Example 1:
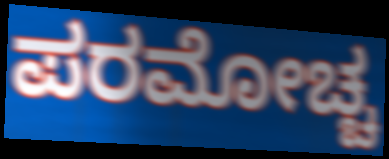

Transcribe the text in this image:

ಪರಮೋಚ್ಚ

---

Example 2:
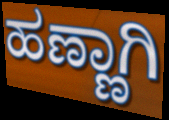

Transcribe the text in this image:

ಹಣ್ಣಾಗಿ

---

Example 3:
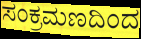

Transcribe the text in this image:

ಸಂಕ್ರಮಣದಿಂದ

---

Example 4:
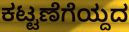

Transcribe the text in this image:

ಕಟ್ಟಣೆಗೆಯ್ದದ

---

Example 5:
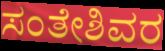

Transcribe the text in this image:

ಸಂತೇಶಿವರ